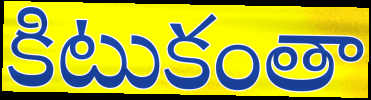
కిటుకంతా